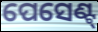
ପେସେଣ୍ଟ୍